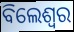
ବିଲେଶ୍ଵର